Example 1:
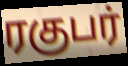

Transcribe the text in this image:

ரகுபர்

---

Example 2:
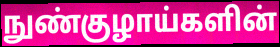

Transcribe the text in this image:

நுண்குழாய்களின்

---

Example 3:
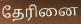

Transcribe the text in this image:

தேரினை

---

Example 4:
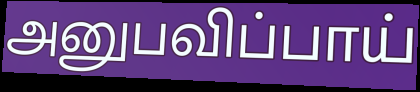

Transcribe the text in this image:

அனுபவிப்பாய்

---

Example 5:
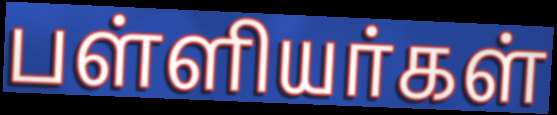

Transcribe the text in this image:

பள்ளியர்கள்